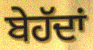
ਬੇਹੱਦਾਂ